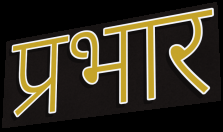
प्रभार